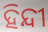
ହିନ୍ଦୀ